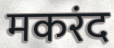
मकरंद